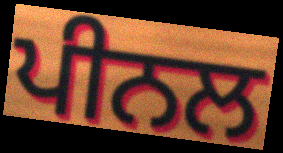
ਪੀਨਲ